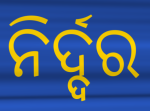
ନିର୍ଦ୍ଦର